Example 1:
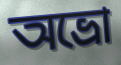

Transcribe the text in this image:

অভ্রো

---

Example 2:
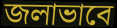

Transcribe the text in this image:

জলাভাবে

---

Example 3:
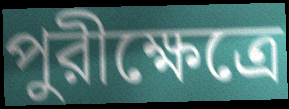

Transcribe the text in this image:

পুরীক্ষেত্রে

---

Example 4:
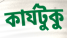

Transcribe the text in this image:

কার্যটুকু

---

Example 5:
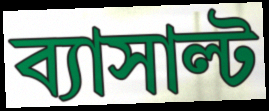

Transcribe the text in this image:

ব্যাসাল্ট